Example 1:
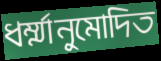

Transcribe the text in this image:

ধর্ম্মানুমোদিত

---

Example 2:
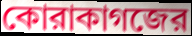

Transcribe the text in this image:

কোরাকাগজের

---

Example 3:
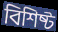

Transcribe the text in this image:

বিশিষ্ট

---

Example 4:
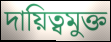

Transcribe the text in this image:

দায়িত্বমুক্ত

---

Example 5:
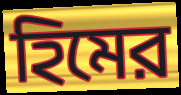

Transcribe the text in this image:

হিমের